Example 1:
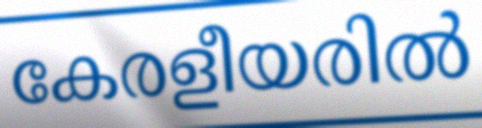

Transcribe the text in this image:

കേരളീയരിൽ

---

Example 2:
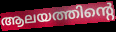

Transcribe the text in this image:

ആലയത്തിന്റെ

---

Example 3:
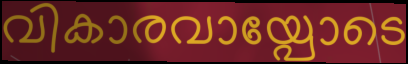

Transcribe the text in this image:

വികാരവായ്പോടെ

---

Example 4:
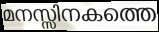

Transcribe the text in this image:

മനസ്സിനകത്തെ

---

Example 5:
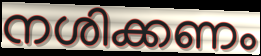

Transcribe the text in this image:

നശിക്കണം